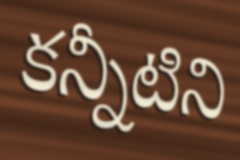
కన్నీటిని